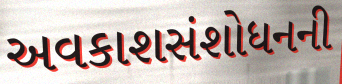
અવકાશસંશોધનની